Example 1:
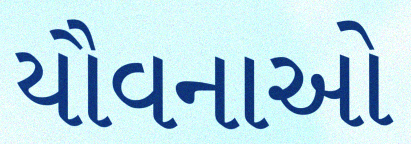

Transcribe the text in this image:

યૌવનાઓ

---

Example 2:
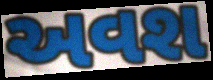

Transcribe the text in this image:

અવશ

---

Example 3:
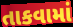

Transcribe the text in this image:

તાકવામાં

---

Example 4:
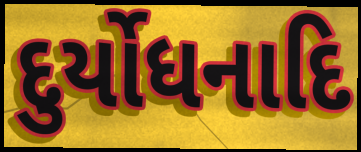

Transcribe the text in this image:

દુર્યોધનાદિ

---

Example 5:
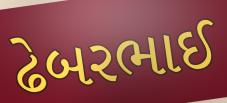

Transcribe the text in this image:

ઢેબરભાઈ